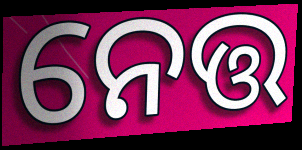
ନେତ୍ତ